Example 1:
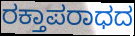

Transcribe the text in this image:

ರಕ್ತಾಪರಾಧದ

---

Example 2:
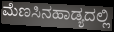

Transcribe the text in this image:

ಮೆಣಸಿನಹಾಡ್ಯದಲ್ಲಿ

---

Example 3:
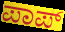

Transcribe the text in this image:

ಪಾಪ್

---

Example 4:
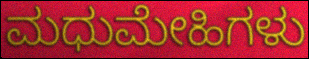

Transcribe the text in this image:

ಮಧುಮೇಹಿಗಳು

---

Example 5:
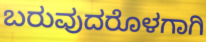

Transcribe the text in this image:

ಬರುವುದರೊಳಗಾಗಿ